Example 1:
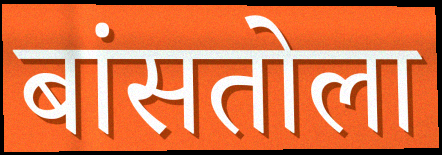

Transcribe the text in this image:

बांसतोला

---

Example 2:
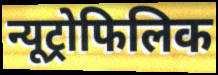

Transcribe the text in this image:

न्यूट्रोफिलिक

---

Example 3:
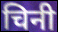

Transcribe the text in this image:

चिनी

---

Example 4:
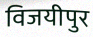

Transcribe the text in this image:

विजयीपुर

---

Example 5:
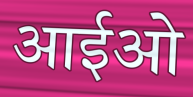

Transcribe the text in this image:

आईओ